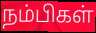
நம்பிகள்